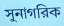
সুনাগরিক